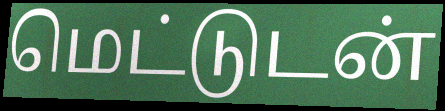
மெட்டுடன்